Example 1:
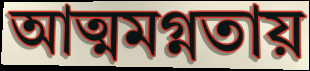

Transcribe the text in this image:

আত্মমগ্নতায়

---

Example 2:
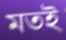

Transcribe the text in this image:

মতই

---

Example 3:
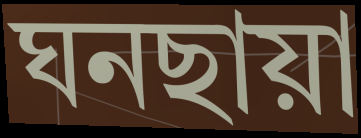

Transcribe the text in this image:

ঘনছায়া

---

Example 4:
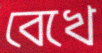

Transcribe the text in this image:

বেখে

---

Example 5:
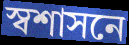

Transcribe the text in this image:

স্বশাসনে